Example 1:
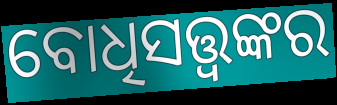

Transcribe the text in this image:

ବୋଧିସତ୍ତ୍ଵଙ୍କର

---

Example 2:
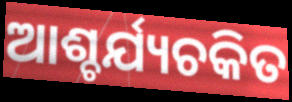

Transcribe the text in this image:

ଆଶ୍ଚର୍ଯ୍ୟଚକିତ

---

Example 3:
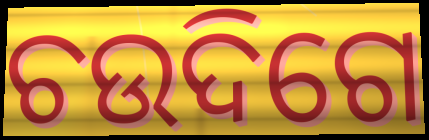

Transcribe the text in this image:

ଚଉଦିଗେ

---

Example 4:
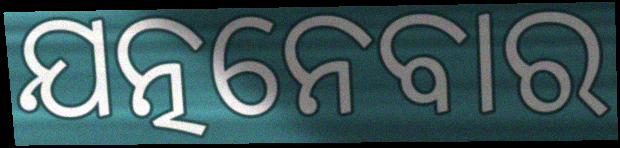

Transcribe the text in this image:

ଯତ୍ନନେବାର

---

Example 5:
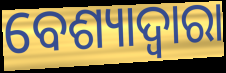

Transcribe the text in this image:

ବେଶ୍ୟାଦ୍ୱାରା